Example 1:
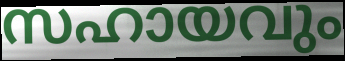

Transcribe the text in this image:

സഹായവും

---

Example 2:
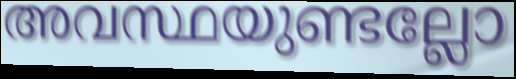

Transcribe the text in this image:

അവസ്ഥയുണ്ടല്ലോ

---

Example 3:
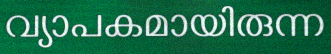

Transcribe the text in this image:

വ്യാപകമായിരുന്ന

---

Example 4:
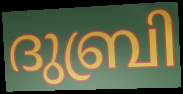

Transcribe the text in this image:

ദുബ്രി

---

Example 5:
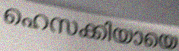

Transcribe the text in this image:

ഹെസക്കിയായെ